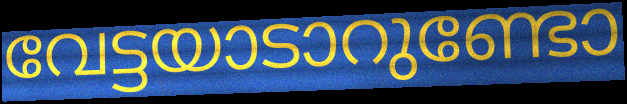
വേട്ടയാടാറുണ്ടോ